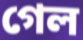
গেল